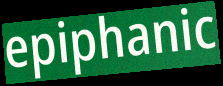
epiphanic